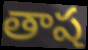
తాష